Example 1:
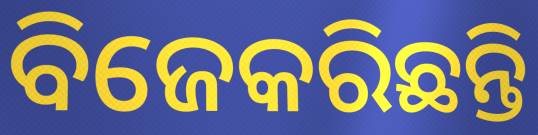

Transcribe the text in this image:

ବିଜେକରିଛନ୍ତି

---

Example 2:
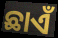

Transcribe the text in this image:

ଛାଏଁ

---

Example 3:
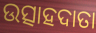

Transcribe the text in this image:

ଉତ୍ସାହଦାତା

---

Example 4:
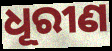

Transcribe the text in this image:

ଧୂରୀଣ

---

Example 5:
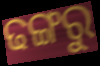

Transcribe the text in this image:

ଢଙ୍ଗରୁ